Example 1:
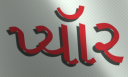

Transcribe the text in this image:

પ્યૉર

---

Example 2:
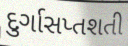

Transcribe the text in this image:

દુર્ગાસપ્તશતી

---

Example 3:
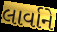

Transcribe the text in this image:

લાર્વાને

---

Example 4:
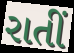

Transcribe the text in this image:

રાતીં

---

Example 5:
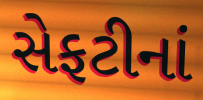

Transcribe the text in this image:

સેફટીનાં